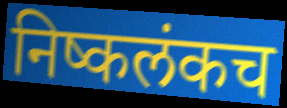
निष्कलंकच